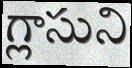
గ్లాసుని